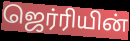
ஜெர்ரியின்